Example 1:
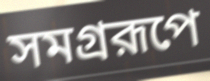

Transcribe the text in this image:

সমগ্ররূপে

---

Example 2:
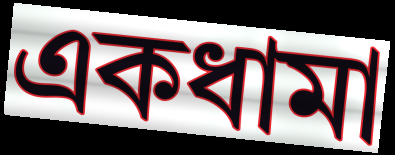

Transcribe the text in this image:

একধামা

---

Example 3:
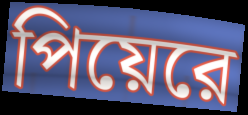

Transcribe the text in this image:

পিয়েরে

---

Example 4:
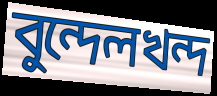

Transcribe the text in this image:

বুন্দেলখন্দ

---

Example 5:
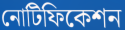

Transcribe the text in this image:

নোটিফিকেশন